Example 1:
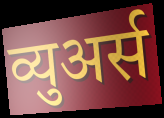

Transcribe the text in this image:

व्युअर्स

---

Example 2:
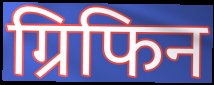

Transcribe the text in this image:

ग्रिफिन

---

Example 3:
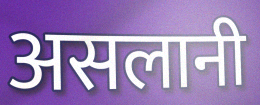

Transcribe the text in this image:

असलानी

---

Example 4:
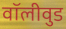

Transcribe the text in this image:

वॉलीवुड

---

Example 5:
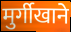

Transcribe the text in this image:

मुर्गीखाने